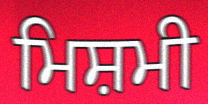
ਮਿਸ਼ਮੀ